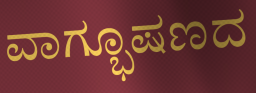
ವಾಗ್ಭೂಷಣದ